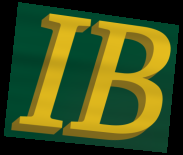
IB